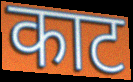
काट